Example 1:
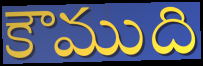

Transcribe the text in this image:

కౌముది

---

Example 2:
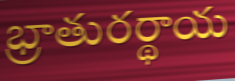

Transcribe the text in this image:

భ్రాతురర్థాయ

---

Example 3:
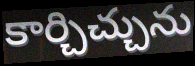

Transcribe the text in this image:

కార్చిచ్చును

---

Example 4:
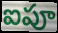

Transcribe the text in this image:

ఐపూ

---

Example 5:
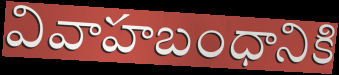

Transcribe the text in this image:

వివాహబంధానికి